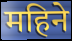
महिने